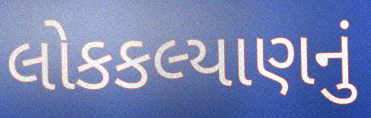
લોકકલ્યાણનું